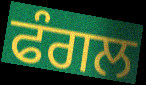
ਫੰਗਲ